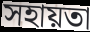
সহায়তা